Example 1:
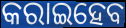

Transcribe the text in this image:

କରାଇହେବ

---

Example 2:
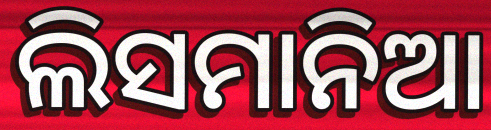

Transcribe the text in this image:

ଲିସମାନିଆ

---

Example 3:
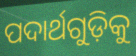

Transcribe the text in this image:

ପଦାର୍ଥଗୁଡ଼ିକୁ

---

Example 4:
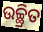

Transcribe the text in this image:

ଉଚ୍ଛ୍ରିତ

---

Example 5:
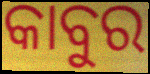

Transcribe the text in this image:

କାବୁର